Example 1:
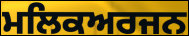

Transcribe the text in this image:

ਮਲਿਕਅਰਜਨ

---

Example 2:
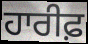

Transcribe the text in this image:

ਹਾਰੀਫ਼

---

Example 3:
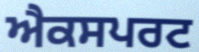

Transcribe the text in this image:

ਐਕਸਪਰਟ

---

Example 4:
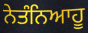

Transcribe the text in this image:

ਨੇਤੰਨਿਆਹੂ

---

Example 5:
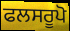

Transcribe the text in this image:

ਫਲਸਰੂਪੋ